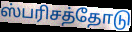
ஸ்பரிசத்தோடு